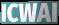
ICWAI